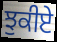
ਝੁਕੀਏ